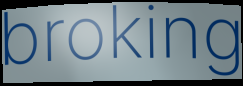
broking